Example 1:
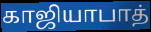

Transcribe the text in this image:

காஜியாபாத்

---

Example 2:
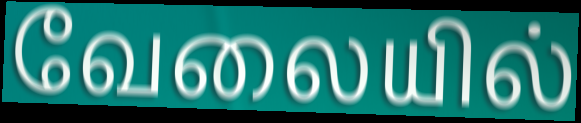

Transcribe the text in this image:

வேலையில்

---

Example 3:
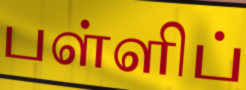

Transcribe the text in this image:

பள்ளிப்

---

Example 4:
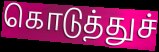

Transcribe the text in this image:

கொடுத்துச்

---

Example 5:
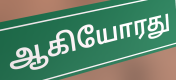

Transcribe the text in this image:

ஆகியோரது